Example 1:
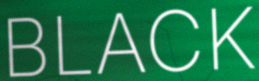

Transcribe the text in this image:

BLACK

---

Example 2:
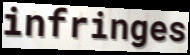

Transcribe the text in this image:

infringes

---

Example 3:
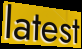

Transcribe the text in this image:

latest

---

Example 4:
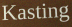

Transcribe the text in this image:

Kasting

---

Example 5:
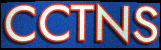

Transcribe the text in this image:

CCTNS